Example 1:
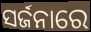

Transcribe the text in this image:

ସର୍ଜନାରେ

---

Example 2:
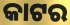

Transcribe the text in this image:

କାଟର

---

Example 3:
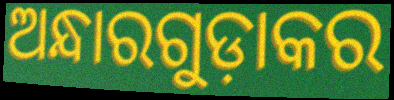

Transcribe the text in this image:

ଅନ୍ଧାରଗୁଡ଼ାକର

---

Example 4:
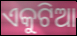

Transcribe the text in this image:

ଏକୁଟିଆ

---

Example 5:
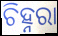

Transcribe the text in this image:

ଚିହ୍ନରା